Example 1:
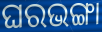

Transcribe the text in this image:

ଘରଭଙ୍ଗା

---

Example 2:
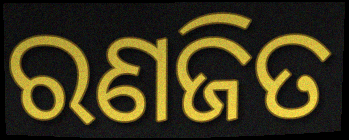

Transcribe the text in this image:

ରଣଜିତ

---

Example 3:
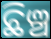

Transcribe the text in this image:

ଛିଞ୍ଚ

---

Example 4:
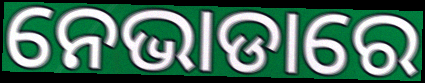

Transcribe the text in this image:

ନେଭାଡାରେ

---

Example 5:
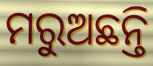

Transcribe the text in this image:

ମରୁଅଛନ୍ତି